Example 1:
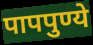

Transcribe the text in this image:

पापपुण्ये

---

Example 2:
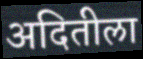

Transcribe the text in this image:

अदितीला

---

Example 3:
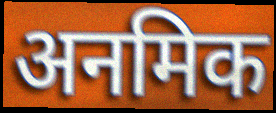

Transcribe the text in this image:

अनमिक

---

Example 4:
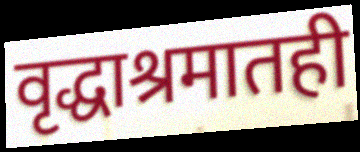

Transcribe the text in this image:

वृद्धाश्रमातही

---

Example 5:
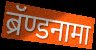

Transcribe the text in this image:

ब्रॅण्डनामा